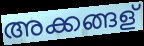
അക്കങ്ങള്